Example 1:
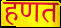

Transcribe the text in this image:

हणत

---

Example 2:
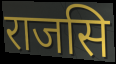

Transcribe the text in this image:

राजसि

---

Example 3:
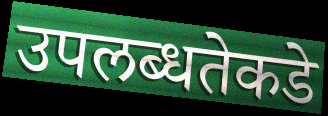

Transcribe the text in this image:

उपलब्धतेकडे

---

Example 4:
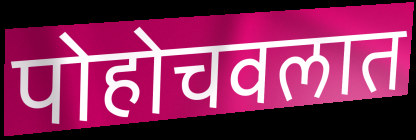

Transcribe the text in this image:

पोहोचवलात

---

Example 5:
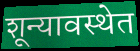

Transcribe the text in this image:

शून्यावस्थेत